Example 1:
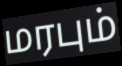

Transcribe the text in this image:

மரபும்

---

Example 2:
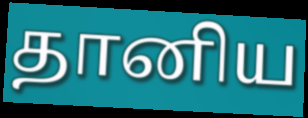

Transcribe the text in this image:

தானிய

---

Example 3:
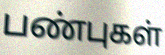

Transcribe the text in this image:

பண்புகள்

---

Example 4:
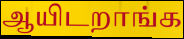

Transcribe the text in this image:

ஆயிடறாங்க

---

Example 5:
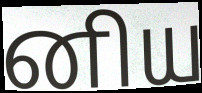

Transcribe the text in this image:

னிய